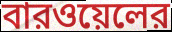
বারওয়েলের